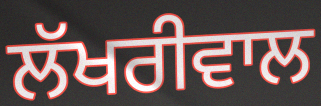
ਲੱਖਰੀਵਾਲ